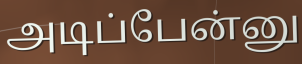
அடிப்பேன்னு